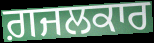
ਗ਼ਜਲਕਾਰ